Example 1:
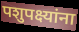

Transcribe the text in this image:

पशुपक्ष्यांना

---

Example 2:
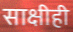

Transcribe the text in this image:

साक्षीही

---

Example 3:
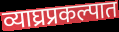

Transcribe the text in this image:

व्याघ्रप्रकल्पात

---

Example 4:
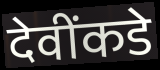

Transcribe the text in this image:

देवींकडे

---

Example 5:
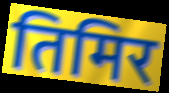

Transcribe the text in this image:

तिमिर